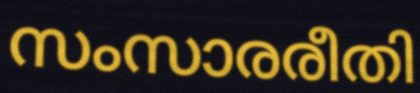
സംസാരരീതി